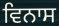
ਵਿਨਾਸ